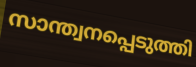
സാന്ത്വനപ്പെടുത്തി